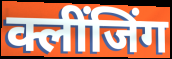
क्लींजिंग